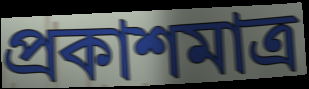
প্রকাশমাত্র